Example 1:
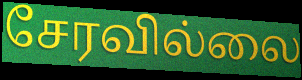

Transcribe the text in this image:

சேரவில்லை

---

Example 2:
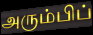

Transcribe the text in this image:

அரும்பிப்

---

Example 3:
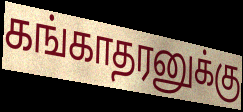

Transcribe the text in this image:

கங்காதரனுக்கு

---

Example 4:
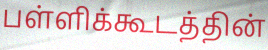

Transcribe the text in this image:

பள்ளிக்கூடத்தின்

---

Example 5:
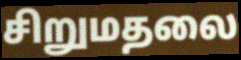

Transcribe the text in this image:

சிறுமதலை